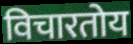
विचारतोय